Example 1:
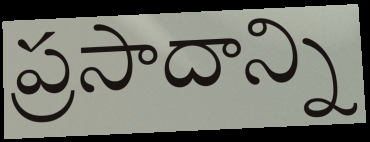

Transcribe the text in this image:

ప్రసాదాన్ని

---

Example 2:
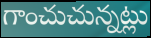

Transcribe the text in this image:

గాంచుచున్నట్లు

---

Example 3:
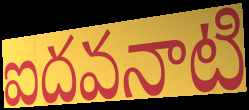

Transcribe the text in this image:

ఐదవనాటి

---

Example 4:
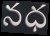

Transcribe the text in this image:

నధ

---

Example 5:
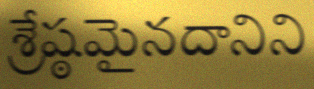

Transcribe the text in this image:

శ్రేష్ఠమైనదానిని